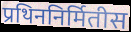
प्रथिननिर्मितीस